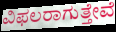
ವಿಫಲರಾಗುತ್ತೇವೆ